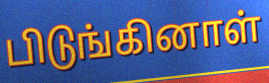
பிடுங்கினாள்